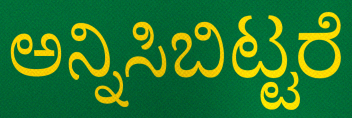
ಅನ್ನಿಸಿಬಿಟ್ಟರೆ